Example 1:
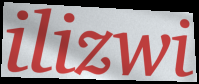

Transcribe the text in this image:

ilizwi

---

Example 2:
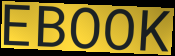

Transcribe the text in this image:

EBOOK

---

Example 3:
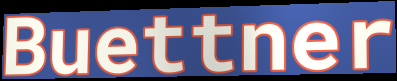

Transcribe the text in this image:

Buettner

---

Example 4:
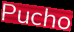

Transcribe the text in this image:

Pucho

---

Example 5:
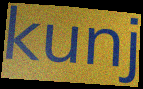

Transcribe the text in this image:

kunj